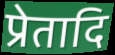
प्रेतादि